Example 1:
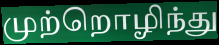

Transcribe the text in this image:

முற்றொழிந்து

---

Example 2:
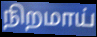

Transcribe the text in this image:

நிறமாய்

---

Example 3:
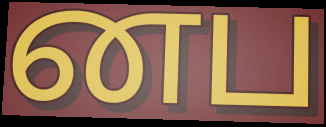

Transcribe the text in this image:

னப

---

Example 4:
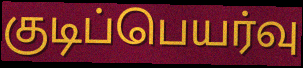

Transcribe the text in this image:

குடிப்பெயர்வு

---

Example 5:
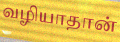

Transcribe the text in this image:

வழியாதான்